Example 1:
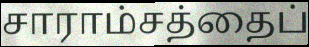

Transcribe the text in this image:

சாராம்சத்தைப்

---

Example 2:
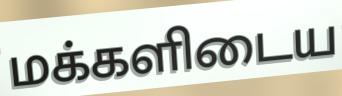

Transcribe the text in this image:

மக்களிடைய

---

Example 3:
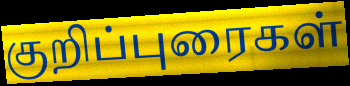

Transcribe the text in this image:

குறிப்புரைகள்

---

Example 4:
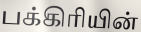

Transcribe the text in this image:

பக்கிரியின்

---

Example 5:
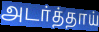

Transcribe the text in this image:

அடர்த்தாய்